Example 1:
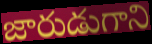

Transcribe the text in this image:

జారుడుగాని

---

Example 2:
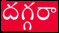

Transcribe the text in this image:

దగ్గరా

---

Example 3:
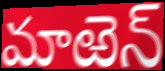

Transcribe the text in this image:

మాఱెన్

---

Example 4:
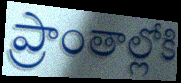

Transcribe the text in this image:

ప్రాంతాల్లోకి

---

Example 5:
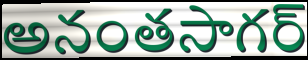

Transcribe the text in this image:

అనంతసాగర్